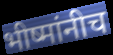
भीष्मांनीच